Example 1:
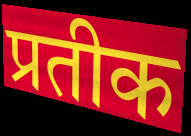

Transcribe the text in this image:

प्रतीक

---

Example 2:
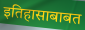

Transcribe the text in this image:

इतिहासाबाबत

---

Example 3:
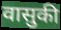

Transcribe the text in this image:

वासुकी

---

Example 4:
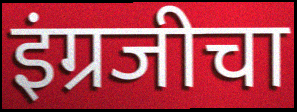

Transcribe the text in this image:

इंग्रजीचा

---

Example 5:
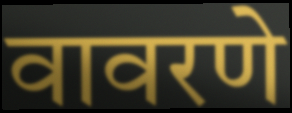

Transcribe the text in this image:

वावरणे